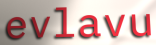
evlavu